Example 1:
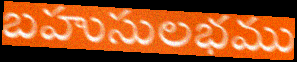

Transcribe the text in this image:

బహుసులభము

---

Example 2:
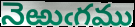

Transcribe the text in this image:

నెఱుఁగము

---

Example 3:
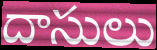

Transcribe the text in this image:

దాసులు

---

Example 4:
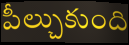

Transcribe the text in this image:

పీల్చుకుంది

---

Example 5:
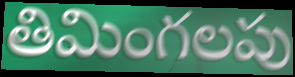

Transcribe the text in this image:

తిమింగలపు